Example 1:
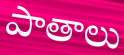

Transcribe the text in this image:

పాతాలు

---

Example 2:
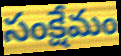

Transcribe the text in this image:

సంక్షేమం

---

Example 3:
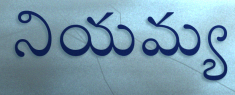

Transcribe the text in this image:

నియమ్య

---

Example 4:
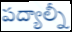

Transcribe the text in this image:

పద్యాల్నీ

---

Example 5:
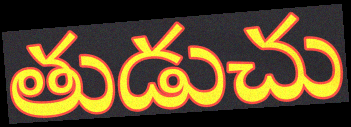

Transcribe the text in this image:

తుడుచు